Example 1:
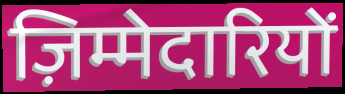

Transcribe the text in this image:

ज़िम्मेदारियों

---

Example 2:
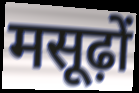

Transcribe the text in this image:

मसूढ़ों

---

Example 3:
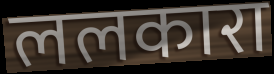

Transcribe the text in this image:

ललकारा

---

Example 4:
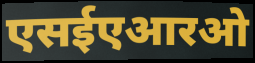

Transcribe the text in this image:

एसईएआरओ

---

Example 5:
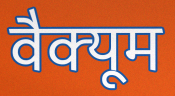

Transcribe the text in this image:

वैक्‍यूम